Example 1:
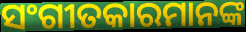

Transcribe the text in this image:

ସଂଗୀତକାରମାନଙ୍କ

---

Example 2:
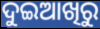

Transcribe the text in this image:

ଦୁଇଆଖିରୁ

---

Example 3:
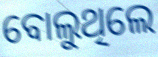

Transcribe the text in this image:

ବୋଲୁଥିଲେ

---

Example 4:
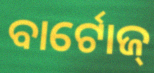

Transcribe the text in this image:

ବାର୍ଟୋଜ୍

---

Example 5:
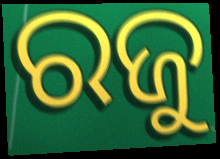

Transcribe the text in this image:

ରଜୁ